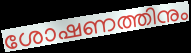
ശോഷണത്തിനും